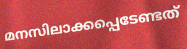
മനസിലാക്കപ്പെടേണ്ടത്